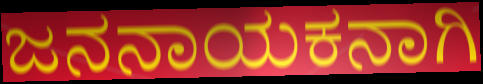
ಜನನಾಯಕನಾಗಿ